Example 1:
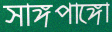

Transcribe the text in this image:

সাঙ্গপাঙ্গো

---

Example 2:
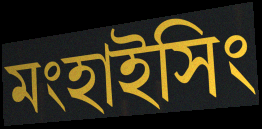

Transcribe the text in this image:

মংহাইসিং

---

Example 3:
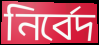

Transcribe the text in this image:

নির্বেদ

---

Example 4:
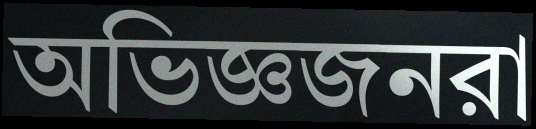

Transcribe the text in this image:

অভিজ্ঞজনরা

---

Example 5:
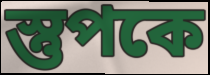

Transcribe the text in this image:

স্তুপকে